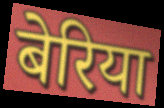
बेरिया